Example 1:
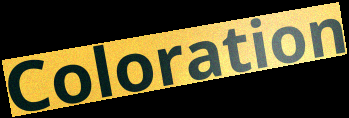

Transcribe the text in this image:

Coloration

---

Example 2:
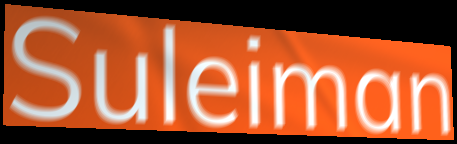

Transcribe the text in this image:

Suleiman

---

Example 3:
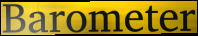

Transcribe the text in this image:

Barometer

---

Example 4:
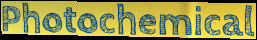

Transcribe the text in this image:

Photochemical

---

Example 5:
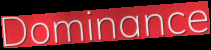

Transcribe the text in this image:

Dominance